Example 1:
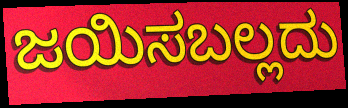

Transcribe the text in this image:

ಜಯಿಸಬಲ್ಲದು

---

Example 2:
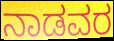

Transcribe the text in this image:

ನಾಡವರ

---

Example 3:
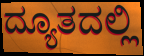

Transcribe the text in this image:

ದ್ಯೂತದಲ್ಲಿ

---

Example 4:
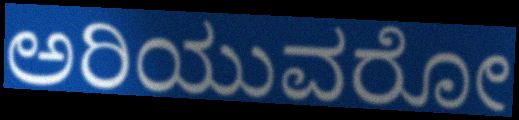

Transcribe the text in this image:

ಅರಿಯುವರೋ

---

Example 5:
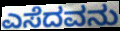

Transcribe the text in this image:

ಎಸೆದವನು